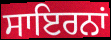
ਸਾਇਰਨਾਂ